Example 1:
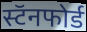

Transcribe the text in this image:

स्टॅनफोर्ड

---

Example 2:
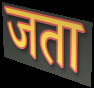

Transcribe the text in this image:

जता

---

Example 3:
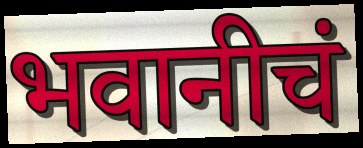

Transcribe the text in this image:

भवानीचं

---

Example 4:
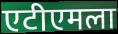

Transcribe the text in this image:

एटीएमला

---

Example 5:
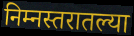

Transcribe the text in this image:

निम्नस्तरातल्या